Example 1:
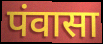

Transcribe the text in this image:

पंवासा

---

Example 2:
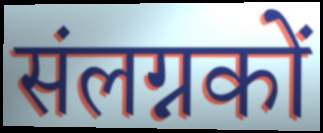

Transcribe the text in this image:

संलग्नकों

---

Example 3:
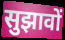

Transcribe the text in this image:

सुझावों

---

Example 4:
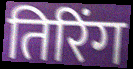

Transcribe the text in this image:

तिरिंग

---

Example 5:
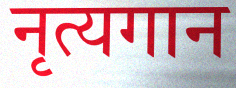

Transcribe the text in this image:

नृत्यगान